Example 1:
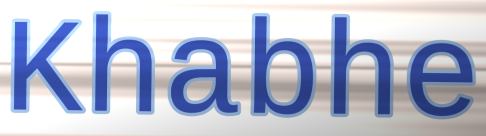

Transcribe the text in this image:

Khabhe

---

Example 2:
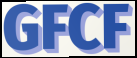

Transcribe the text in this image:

GFCF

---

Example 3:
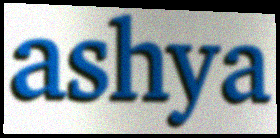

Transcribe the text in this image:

ashya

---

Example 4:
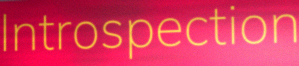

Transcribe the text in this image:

Introspection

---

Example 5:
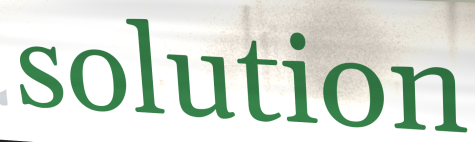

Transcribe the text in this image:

solution